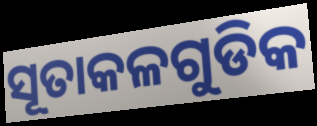
ସୂତାକଳଗୁଡିକ